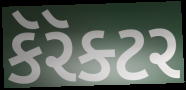
કૅરૅક્ટર